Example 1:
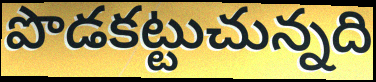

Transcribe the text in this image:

పొడకట్టుచున్నది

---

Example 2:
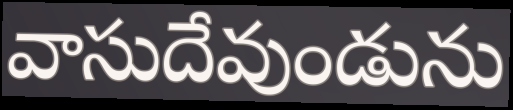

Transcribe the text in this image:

వాసుదేవుండును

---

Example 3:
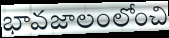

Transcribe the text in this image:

భావజాలంలోంచి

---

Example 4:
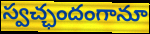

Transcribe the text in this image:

స్వచ్ఛందంగానూ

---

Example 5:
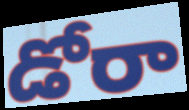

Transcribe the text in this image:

డోరా